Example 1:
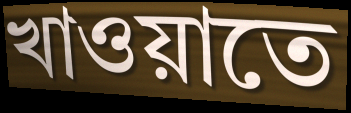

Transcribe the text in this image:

খাওয়াতে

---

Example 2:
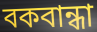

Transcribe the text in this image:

বকবান্ধা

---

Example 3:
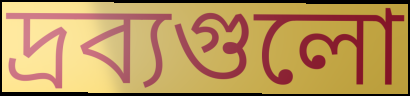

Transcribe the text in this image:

দ্রব্যগুলো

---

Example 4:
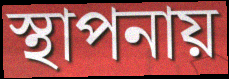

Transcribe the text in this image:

স্থাপনায়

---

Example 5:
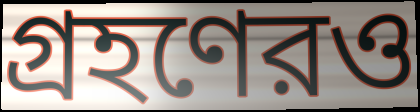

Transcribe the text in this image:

গ্রহণেরও